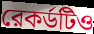
রেকর্ডটিও